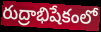
రుద్రాభిషేకంలో